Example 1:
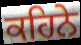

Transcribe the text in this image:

ਕਹਿਨੇ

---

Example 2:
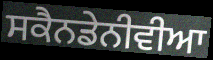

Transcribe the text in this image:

ਸਕੈਨਡੇਨੀਵੀਆ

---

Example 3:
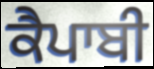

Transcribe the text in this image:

ਕੈਪਾਬੀ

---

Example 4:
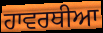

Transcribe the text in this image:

ਹਾਵਰਥੀਆ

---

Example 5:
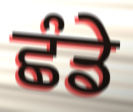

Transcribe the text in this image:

ਛੰਡੇ